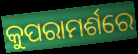
କୁପରାମର୍ଶରେ